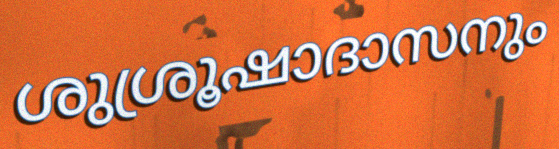
ശുശ്രൂഷാദാസനും